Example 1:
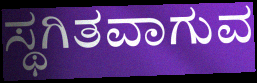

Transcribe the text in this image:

ಸ್ಥಗಿತವಾಗುವ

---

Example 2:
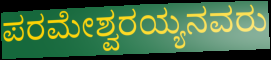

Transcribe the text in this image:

ಪರಮೇಶ್ವರಯ್ಯನವರು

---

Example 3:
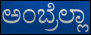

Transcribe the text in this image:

ಅಂಬ್ರೆಲ್ಲಾ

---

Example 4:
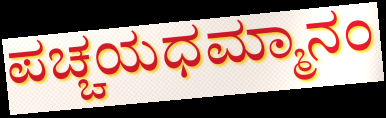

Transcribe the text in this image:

ಪಚ್ಚಯಧಮ್ಮಾನಂ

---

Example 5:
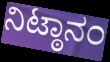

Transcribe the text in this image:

ನಿಟ್ಠಾನಂ